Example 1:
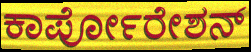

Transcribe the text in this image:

ಕಾರ್ಪೋರೇಶನ್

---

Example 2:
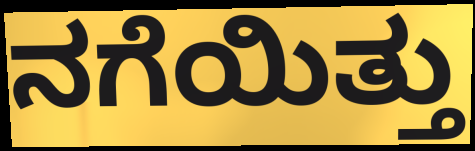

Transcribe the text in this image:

ನಗೆಯಿತ್ತು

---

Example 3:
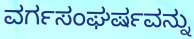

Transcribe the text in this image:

ವರ್ಗಸಂಘರ್ಷವನ್ನು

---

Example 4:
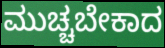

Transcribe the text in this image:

ಮುಚ್ಚಬೇಕಾದ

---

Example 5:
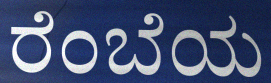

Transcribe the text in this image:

ರೆಂಬೆಯ